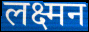
लक्ष्मन